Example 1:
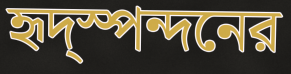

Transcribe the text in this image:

হৃদ্স্পন্দনের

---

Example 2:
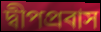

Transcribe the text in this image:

দ্বীপপ্রবাস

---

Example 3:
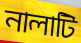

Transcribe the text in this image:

নালাটি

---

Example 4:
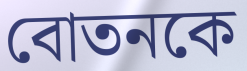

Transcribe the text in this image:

বোতনকে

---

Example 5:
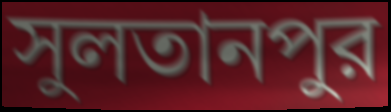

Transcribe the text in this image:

সুলতানপুর